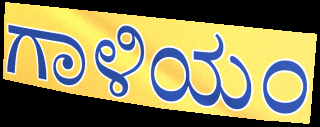
ಗಾಳಿಯಂ